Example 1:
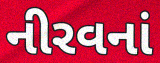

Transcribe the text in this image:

નીરવનાં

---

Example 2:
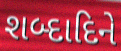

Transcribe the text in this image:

શબ્દાદિને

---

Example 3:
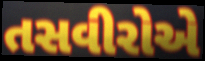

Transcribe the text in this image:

તસવીરોએ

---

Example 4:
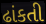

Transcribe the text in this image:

ઢાંકતી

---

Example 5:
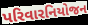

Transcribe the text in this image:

પરિવારનિયોજન